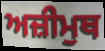
ਅਜ਼ੀਮੁਥ